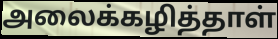
அலைக்கழித்தாள்